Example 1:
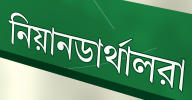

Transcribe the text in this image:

নিয়ানডার্থালরা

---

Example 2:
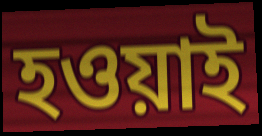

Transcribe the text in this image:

হওয়াই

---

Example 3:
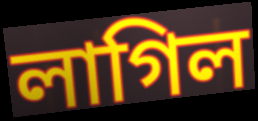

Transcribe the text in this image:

লাগিল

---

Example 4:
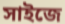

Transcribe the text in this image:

সাইজে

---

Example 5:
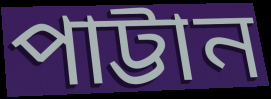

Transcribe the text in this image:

পাট্টান